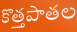
కొత్తపాతల